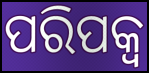
ପରିପକ୍ବ